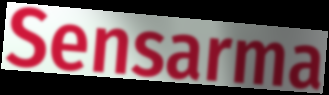
Sensarma